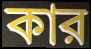
কার